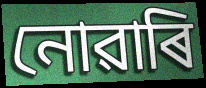
নোৱাৰি